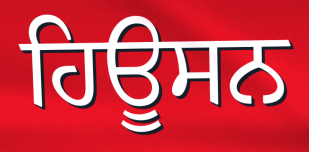
ਹਿਊਸਨ